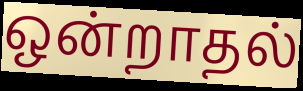
ஒன்றாதல்